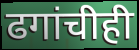
ढगांचीही